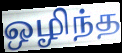
ஒழிந்த